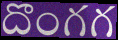
దొంగగ